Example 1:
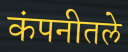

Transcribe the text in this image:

कंपनीतले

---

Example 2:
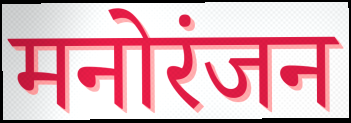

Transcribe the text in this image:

मनोरंजन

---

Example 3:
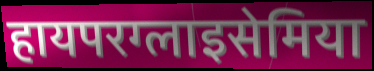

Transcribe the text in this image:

हायपरग्लाइसेमिया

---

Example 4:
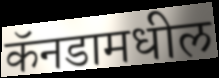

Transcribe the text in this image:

कॅनडामधील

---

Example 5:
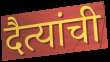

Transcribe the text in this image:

दैत्यांची